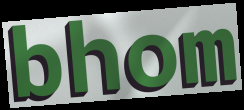
bhom